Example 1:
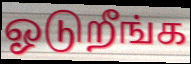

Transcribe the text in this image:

ஓடுறீங்க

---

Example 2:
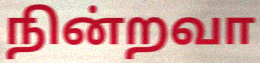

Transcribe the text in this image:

நின்றவா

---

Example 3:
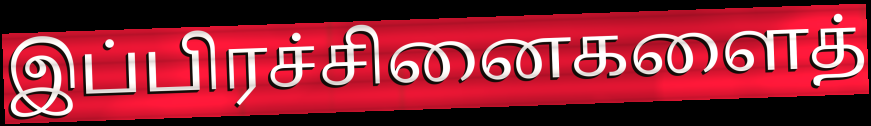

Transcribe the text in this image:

இப்பிரச்சினைகளைத்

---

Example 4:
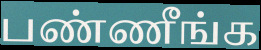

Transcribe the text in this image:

பண்ணீங்க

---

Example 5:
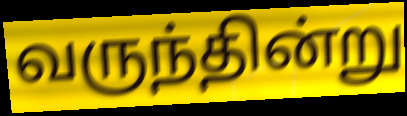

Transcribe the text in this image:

வருந்தின்று